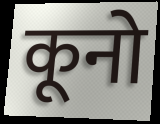
कूनो